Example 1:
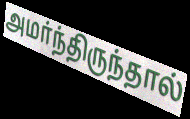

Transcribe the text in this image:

அமர்ந்திருந்தால்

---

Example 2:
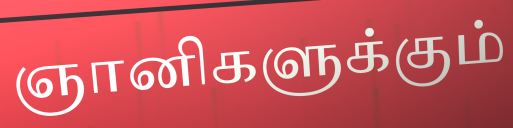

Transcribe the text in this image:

ஞானிகளுக்கும்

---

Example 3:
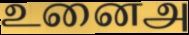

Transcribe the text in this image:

உனைஅ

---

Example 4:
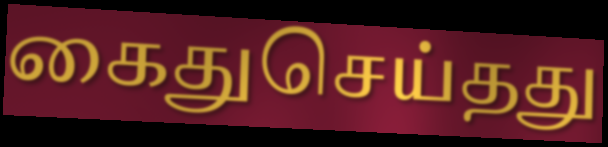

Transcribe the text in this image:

கைதுசெய்தது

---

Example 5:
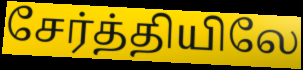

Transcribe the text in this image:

சேர்த்தியிலே